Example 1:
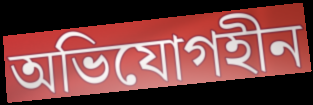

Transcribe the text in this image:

অভিযোগহীন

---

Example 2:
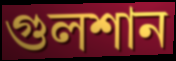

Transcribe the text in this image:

গুলশান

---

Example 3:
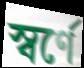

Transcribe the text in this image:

স্বর্ণে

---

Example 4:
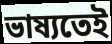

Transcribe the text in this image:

ভাষ্যতেই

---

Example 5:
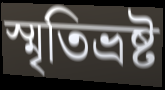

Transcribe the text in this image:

স্মৃতিভ্রষ্ট